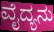
ವೈದ್ಯನು